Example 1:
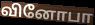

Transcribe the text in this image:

வினோபா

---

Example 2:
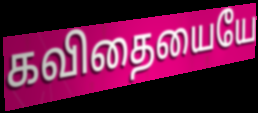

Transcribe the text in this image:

கவிதையையே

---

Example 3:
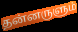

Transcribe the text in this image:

தன்னருளும்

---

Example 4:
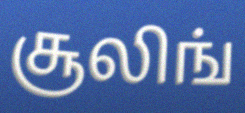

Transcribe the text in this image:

சூலிங்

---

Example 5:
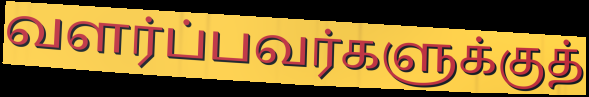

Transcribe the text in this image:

வளர்ப்பவர்களுக்குத்